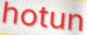
hotun